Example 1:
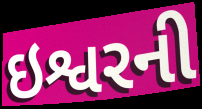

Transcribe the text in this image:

ઇશ્વરની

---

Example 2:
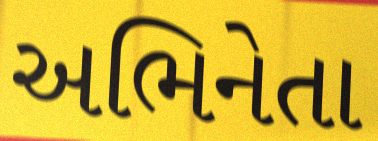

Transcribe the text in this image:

અભિનેતા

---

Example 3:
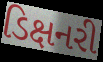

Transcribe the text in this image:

ડિક્ષનરી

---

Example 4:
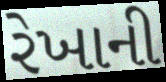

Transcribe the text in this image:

રેખાની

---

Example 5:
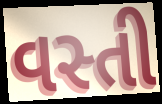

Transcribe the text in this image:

વસ્તી